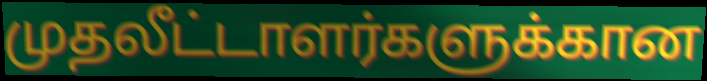
முதலீட்டாளர்களுக்கான